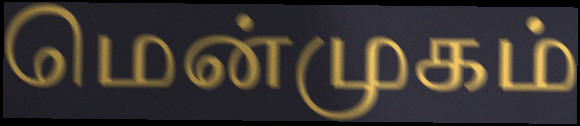
மென்முகம்